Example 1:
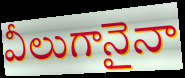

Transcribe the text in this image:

వీలుగానైనా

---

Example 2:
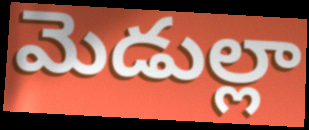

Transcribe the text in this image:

మెడుల్లా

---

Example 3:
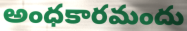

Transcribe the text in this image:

అంధకారమందు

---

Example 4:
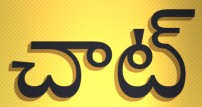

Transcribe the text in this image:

చాట్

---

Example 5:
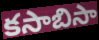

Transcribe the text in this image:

కసాబిసా